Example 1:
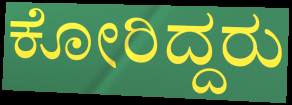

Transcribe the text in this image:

ಕೋರಿದ್ದರು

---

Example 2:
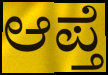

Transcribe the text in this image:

ಆಪ್ತೆ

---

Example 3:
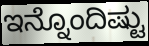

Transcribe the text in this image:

ಇನ್ನೊಂದಿಷ್ಟು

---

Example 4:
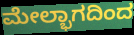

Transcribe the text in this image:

ಮೇಲ್ಭಾಗದಿಂದ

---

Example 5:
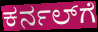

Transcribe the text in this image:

ಕರ್ನಲ್‌ಗೆ